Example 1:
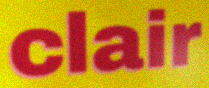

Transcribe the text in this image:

clair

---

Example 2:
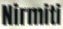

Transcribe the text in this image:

Nirmiti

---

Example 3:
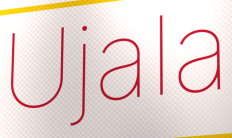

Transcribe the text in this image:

Ujala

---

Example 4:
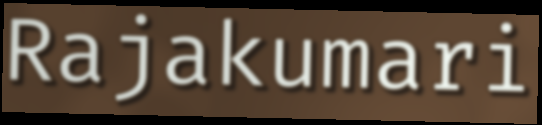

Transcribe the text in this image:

Rajakumari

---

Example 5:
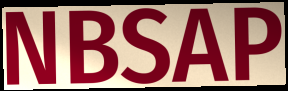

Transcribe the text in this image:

NBSAP